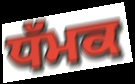
ਧੱਮਕ